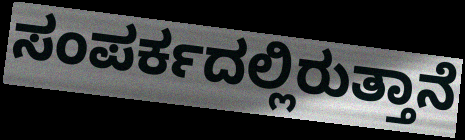
ಸಂಪರ್ಕದಲ್ಲಿರುತ್ತಾನೆ